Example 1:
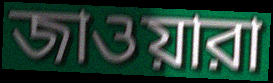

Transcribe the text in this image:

জাওয়ারা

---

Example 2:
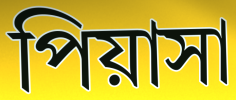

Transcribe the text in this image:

পিয়াসা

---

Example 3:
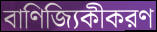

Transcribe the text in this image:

বাণিজ্যিকীকরণ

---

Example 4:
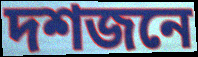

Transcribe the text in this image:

দশজনে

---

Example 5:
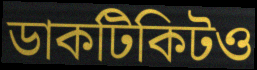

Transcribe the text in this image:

ডাকটিকিটও